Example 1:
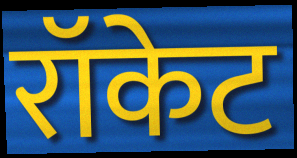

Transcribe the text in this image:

रॉकेट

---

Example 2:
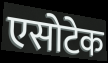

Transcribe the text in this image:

एसोटेक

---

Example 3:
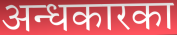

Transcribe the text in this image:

अन्धकारका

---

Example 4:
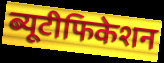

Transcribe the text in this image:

ब्यूटीफिकेशन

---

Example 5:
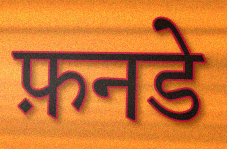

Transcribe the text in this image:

फ़नडे